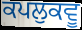
ਕਪਲੁਕਵੂ